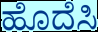
ಹೊದೆಸಿ